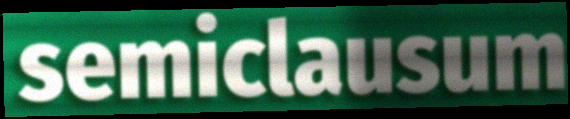
semiclausum